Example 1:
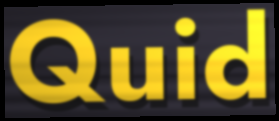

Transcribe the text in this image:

Quid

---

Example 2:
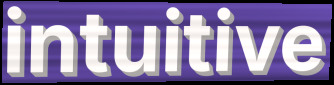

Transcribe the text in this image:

intuitive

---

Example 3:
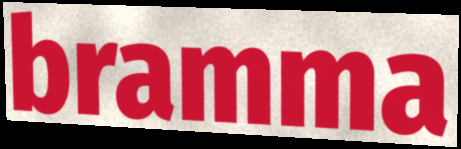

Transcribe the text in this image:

bramma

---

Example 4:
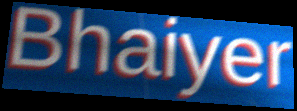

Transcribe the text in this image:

Bhaiyer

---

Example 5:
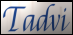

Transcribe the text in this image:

Tadvi